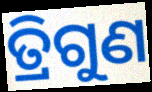
ତ୍ରିଗୁଣ